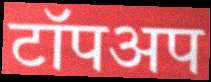
टॉपअप